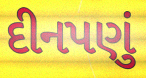
દીનપણું